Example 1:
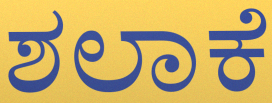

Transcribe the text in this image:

ಶಲಾಕೆ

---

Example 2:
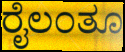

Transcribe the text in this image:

ರೈಲಂತೂ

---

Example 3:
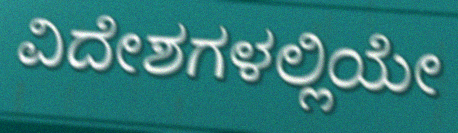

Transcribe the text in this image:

ವಿದೇಶಗಳಲ್ಲಿಯೇ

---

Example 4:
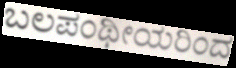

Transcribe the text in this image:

ಬಲಪಂಥೀಯರಿಂದ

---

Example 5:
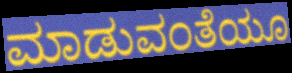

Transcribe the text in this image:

ಮಾಡುವಂತೆಯೂ